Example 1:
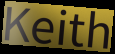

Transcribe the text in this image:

Keith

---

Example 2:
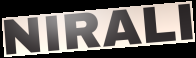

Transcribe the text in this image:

NIRALI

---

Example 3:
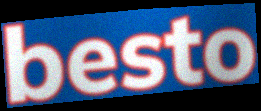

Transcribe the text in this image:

besto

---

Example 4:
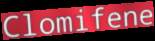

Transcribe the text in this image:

Clomifene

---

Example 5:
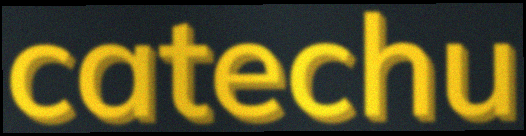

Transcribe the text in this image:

catechu